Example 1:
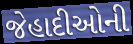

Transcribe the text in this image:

જેહાદીઓની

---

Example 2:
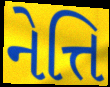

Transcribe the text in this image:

નેત્તિ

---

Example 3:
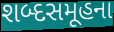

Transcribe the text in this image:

શબ્દસમૂહના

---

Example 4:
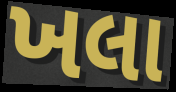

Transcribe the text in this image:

ખલા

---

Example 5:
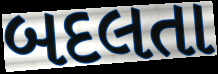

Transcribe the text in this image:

બદલતા